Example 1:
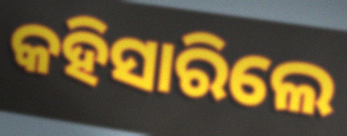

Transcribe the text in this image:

କହିସାରିଲେ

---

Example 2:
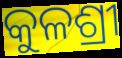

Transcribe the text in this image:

କୁଳଶ୍ରୀ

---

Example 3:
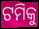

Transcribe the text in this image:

ଟମିକୁ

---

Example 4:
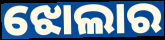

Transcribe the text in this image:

ଝୋଲାର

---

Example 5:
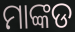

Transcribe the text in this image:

ମାଙ୍କଡ